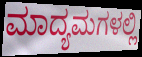
ಮಾದ್ಯಮಗಳಲ್ಲಿ